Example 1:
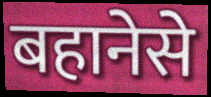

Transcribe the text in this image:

बहानेसे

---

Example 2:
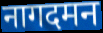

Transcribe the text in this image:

नागदमन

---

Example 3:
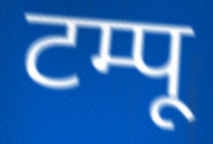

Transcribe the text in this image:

टम्पू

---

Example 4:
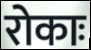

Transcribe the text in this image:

रोकाः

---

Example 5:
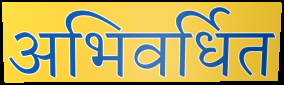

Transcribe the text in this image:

अभिवर्धित